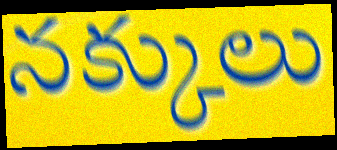
నక్కులు